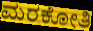
ಮರಕೋತಿ